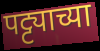
पट्ट्याच्या